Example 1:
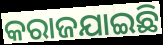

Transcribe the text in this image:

କରାଜଯାଇଛି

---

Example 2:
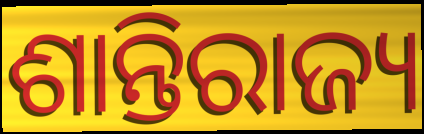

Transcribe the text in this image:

ଶାନ୍ତିରାଜ୍ୟ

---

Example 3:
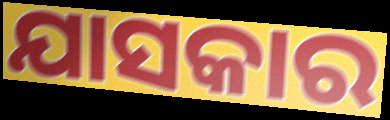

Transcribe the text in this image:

ଯାସକାର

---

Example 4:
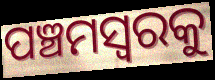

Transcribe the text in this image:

ପଞ୍ଚମସ୍ୱରକୁ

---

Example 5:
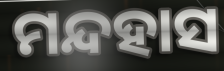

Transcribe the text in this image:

ମନ୍ଦହାସ